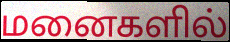
மனைகளில்